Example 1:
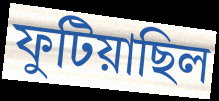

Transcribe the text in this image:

ফুটিয়াছিল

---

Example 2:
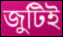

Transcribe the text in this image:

জুটিই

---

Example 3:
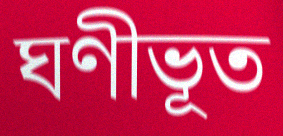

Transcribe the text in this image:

ঘণীভূত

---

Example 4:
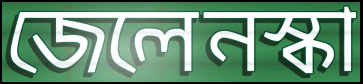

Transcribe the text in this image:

জেলেনস্কা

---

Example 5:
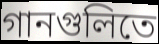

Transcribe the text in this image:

গানগুলিতে